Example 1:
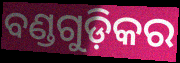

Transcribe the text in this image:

ବଣ୍ଡଗୁଡ଼ିକର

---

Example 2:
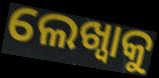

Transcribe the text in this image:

ଲେଖ୍ବାକୁ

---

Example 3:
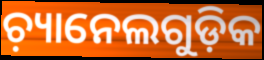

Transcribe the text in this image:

ଚ଼୍ୟାନେଲଗୁଡ଼ିକ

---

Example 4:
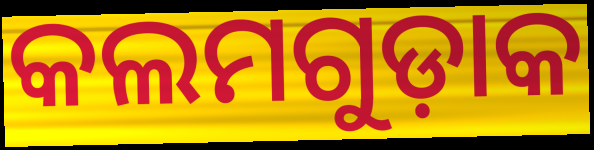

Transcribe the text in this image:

କଲମଗୁଡ଼ାକ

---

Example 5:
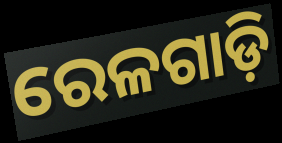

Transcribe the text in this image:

ରେଳଗାଡ଼ି